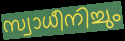
സ്വാധീനിച്ചും